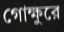
গোক্ষুরে